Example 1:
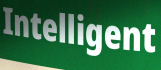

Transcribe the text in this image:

Intelligent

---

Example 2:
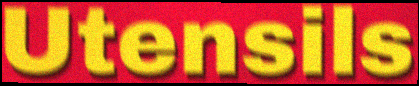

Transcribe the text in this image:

Utensils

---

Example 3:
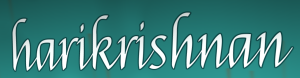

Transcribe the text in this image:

harikrishnan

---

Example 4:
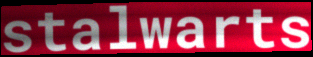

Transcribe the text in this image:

stalwarts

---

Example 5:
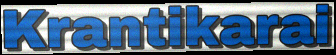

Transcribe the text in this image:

Krantikarai